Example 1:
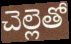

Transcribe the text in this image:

చెల్లెతో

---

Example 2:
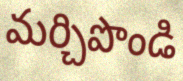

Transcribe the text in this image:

మర్చిపొండి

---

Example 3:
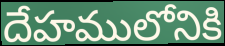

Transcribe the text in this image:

దేహములోనికి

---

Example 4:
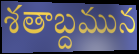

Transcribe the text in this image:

శతాబ్దమున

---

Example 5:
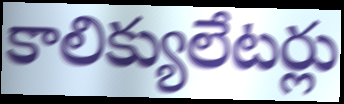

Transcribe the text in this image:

కాలిక్యులేటర్లు